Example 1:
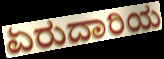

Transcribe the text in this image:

ಏರುದಾರಿಯ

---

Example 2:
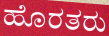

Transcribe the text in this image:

ಹೊರತರು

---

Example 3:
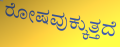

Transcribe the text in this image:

ರೋಷವುಕ್ಕುತ್ತದೆ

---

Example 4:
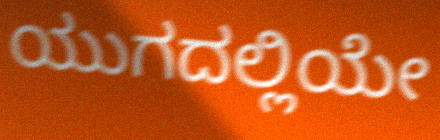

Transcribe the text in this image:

ಯುಗದಲ್ಲಿಯೇ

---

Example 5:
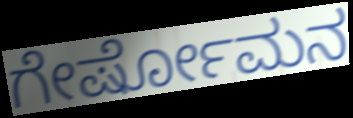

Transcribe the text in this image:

ಗೇರ್ಷೋಮನ